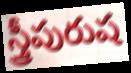
స్త్రీపురుష